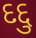
દદ્દુ